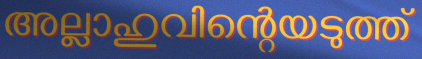
അല്ലാഹുവിന്റെയടുത്ത്